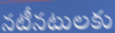
నటీనటులకు